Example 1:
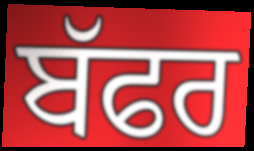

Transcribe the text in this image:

ਬੱਫਰ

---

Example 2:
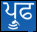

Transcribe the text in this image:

ਪ੍ਰੂਫ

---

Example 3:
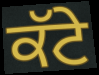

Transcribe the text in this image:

ਕੱਟੇ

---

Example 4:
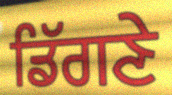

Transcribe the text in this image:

ਡਿੱਗਣੇ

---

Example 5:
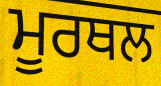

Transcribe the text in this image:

ਮੂਰਥਲ